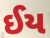
ઈય